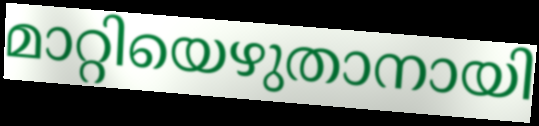
മാറ്റിയെഴുതാനായി